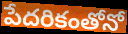
పేదరికంతోనో